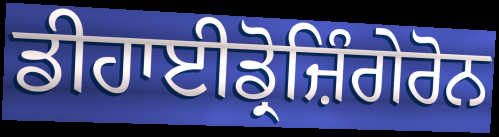
ਡੀਹਾਈਡ੍ਰੋਜ਼ਿੰਗੇਰੋਨ